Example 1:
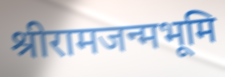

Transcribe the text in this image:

श्रीरामजन्मभूमि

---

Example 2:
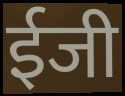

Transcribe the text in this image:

ईजी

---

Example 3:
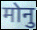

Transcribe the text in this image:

मोनु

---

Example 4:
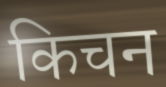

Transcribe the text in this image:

किचन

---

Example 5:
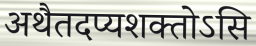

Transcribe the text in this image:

अथैतदप्यशक्तोऽसि